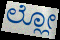
ಲ್ಲೋ